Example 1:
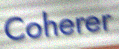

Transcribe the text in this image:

Coherer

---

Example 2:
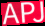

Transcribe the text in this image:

APJ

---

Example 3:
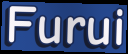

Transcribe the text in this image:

Furui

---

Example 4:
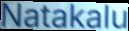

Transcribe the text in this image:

Natakalu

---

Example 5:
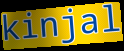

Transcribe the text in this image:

kinjal